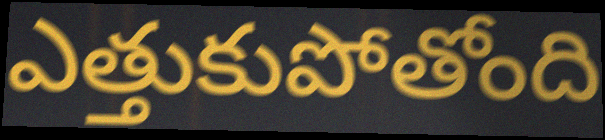
ఎత్తుకుపోతోంది